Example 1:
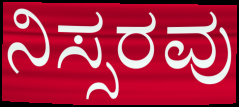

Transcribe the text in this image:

ನಿಸ್ಸರವು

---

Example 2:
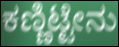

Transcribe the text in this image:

ಕಣ್ಣಿಟ್ಟೇನು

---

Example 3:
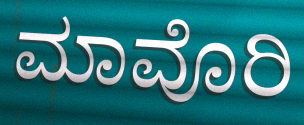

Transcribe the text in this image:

ಮಾವೊರಿ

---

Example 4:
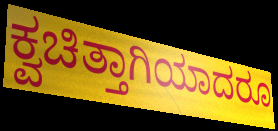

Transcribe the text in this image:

ಕ್ವಚಿತ್ತಾಗಿಯಾದರೂ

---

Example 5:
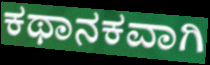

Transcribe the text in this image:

ಕಥಾನಕವಾಗಿ